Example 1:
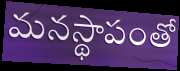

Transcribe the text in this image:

మనస్థాపంతో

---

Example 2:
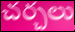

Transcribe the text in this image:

చర్చలు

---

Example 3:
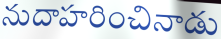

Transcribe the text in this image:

నుదాహరించినాడు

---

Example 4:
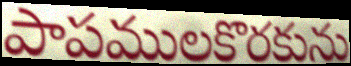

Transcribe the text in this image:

పాపములకొరకును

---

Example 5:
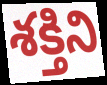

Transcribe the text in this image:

శక్తిని